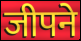
जीपने